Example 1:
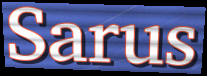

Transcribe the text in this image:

Sarus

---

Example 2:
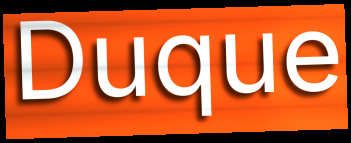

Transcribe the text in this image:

Duque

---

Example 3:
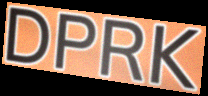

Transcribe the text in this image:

DPRK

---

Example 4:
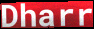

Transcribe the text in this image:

Dharr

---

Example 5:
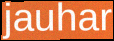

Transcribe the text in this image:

jauhar